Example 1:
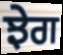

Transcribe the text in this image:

ਝੇਗ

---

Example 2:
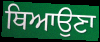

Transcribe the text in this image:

ਥਿਆਉਣਾ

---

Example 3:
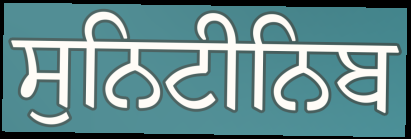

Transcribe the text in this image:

ਸੁਨਿਟੀਨਿਬ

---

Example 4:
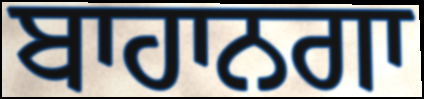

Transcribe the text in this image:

ਬਾਹਾਨਗਾ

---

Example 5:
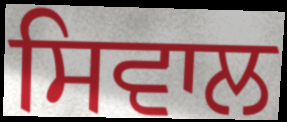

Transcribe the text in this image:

ਸਿਵਾਲ